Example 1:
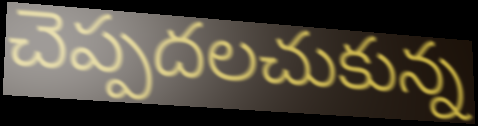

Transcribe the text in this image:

చెప్పదలచుకున్న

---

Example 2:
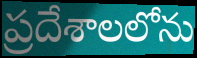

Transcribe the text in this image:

ప్రదేశాలలోను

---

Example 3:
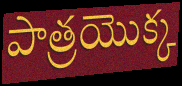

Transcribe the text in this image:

పాత్రయొక్క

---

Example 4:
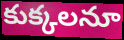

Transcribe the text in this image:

కుక్కలనూ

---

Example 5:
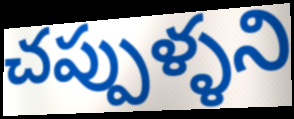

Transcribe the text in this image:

చప్పుళ్ళని